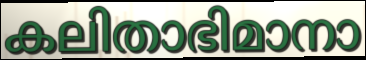
കലിതാഭിമാനാ